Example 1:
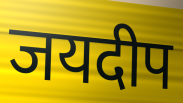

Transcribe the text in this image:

जयदीप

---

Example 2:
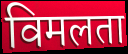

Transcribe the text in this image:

विमलता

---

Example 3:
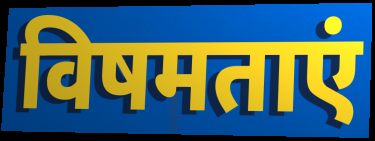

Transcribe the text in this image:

विषमताएं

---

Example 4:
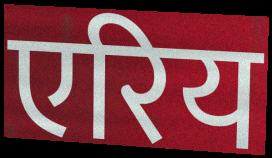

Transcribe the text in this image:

एरिय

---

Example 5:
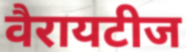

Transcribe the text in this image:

वैरायटीज